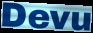
Devu